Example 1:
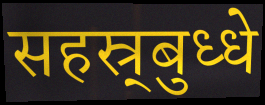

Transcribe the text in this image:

सहस्र्बुध्धे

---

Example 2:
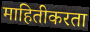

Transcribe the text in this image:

माहितीकरता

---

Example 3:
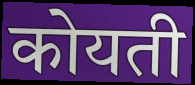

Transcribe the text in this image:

कोयती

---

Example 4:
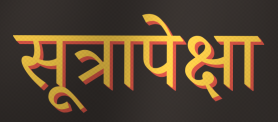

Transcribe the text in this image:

सूत्रापेक्षा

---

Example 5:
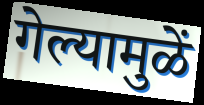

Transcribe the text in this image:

गेल्यामुळें